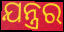
ଯନ୍ତ୍ରର